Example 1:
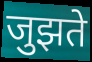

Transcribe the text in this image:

जुझते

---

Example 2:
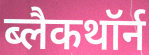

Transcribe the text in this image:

ब्लैकथॉर्न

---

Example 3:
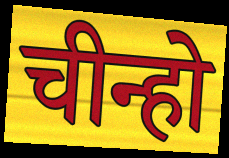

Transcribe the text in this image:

चीन्हो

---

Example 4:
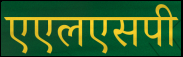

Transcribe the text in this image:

एएलएसपी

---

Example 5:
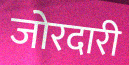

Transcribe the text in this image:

जोरदारी